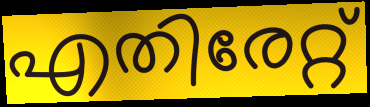
എതിരേറ്റ്